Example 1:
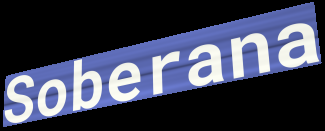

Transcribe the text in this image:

Soberana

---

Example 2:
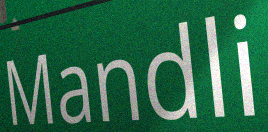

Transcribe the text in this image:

Mandli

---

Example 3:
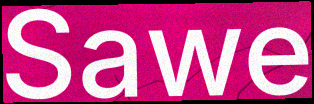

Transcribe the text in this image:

Sawe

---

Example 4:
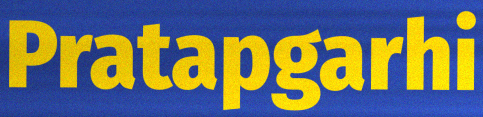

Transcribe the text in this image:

Pratapgarhi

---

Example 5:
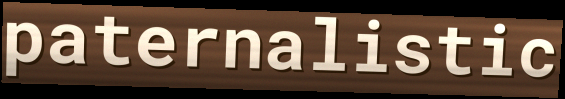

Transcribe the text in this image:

paternalistic